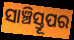
ସାଞ୍ଚିସ୍ତୂପର